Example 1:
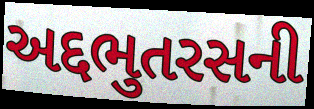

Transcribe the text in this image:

અદ્દભુતરસની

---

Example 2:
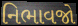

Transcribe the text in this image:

નિભાવજો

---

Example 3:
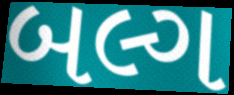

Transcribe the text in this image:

બલ્ગ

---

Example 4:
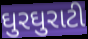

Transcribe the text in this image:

ઘુરઘુરાટી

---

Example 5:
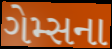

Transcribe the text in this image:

ગેમ્સના